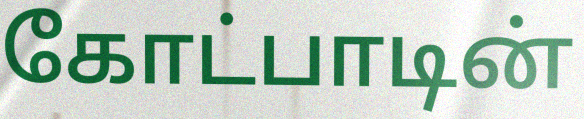
கோட்பாடின்